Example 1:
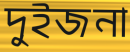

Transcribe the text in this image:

দুইজনা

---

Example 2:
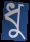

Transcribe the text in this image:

ধু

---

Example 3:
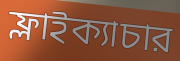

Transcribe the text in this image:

ফ্লাইক্যাচার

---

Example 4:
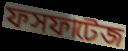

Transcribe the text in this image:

ফসফাটেজ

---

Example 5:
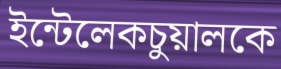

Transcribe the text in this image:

ইন্টেলেকচুয়ালকে